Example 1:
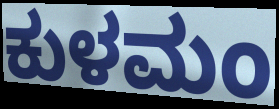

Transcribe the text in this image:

ಕುಳಮಂ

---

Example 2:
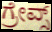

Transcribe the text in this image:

ಗ್ರೇವ್ಸ್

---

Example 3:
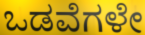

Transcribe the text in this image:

ಒಡವೆಗಳೇ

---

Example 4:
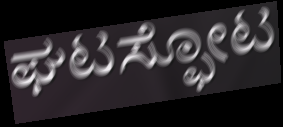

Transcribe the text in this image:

ಘಟಸ್ಫೋಟ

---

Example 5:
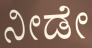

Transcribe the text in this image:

ನೀಡೇ